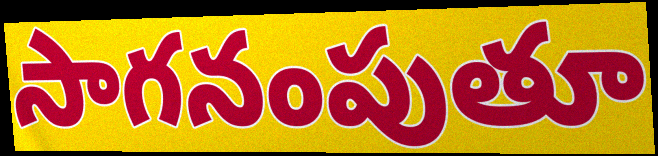
సాగనంపుతూ